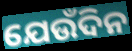
ଯେଉଁଦିନ